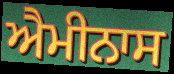
ਐਮੀਨਾਸ